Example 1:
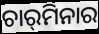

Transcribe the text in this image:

ଚାର୍‌ମିନାର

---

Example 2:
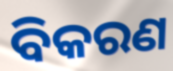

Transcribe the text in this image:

ବିକରଣ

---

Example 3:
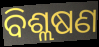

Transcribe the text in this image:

ବିଶ୍ଲଷଣ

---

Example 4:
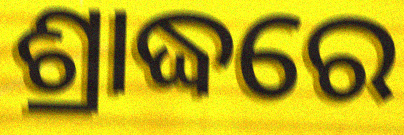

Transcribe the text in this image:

ଶ୍ରାଦ୍ଧରେ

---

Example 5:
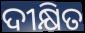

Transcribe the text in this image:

ଦୀକ୍ଷିତ